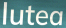
lutea